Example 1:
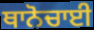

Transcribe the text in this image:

ਥਾਨੋਚਾਈ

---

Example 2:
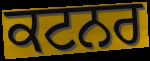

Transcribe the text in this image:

ਕਟਨਰ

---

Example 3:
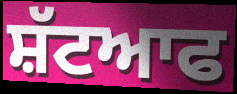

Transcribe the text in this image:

ਸ਼ੱਟਆਫ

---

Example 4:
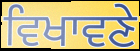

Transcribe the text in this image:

ਵਿਖਾਵਣੇ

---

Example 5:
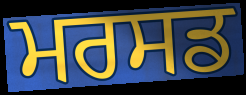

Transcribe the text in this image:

ਮਰਸਡ